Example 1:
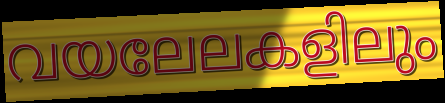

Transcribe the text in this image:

വയലേലകളിലും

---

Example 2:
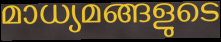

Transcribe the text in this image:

മാധ്യമങ്ങളുടെ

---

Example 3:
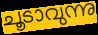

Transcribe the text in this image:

ചൂടാവുന്നു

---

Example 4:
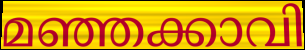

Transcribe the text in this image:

മഞ്ഞക്കാവി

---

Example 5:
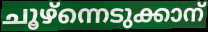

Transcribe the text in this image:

ചൂഴ്ന്നെടുക്കാന്